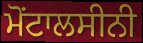
ਮੋਂਟਾਲਸੀਨੀ